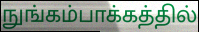
நுங்கம்பாக்கத்தில்